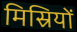
मिस्रियों